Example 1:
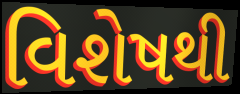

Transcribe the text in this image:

વિશેષથી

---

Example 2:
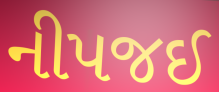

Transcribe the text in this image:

નીપજઈ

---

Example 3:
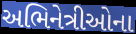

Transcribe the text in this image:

અભિનેત્રીઓના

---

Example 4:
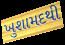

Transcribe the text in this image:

ખુશામદથી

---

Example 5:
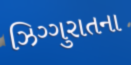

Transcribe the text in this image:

ઝિગ્ગુરાતના